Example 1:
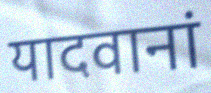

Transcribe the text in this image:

यादवानां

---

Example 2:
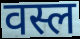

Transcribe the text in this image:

वस्ल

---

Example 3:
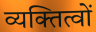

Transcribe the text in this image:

व्यक्तित्वों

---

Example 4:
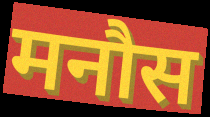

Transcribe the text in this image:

मनौस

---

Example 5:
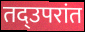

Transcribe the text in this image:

तद्उपरांत